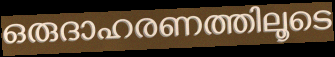
ഒരുദാഹരണത്തിലൂടെ